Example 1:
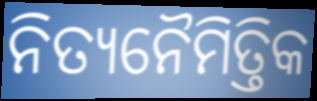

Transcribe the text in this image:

ନିତ୍ୟନୈମିତ୍ତିକ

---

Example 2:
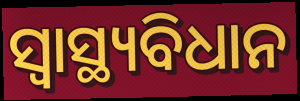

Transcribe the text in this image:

ସ୍ୱାସ୍ଥ୍ୟବିଧାନ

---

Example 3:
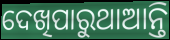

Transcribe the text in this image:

ଦେଖିପାରୁଥାଆନ୍ତି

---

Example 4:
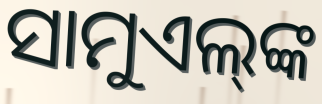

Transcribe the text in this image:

ସାମୁଏଲ୍‌ଙ୍କ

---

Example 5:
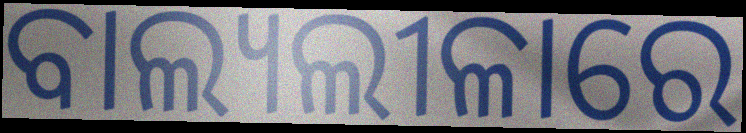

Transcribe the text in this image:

ବାଲ୍ୟଲୀଳାରେ